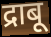
द्राबू